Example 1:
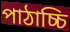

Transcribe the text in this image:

পাঠাচ্চি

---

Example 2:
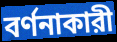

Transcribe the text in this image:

বর্ণনাকারী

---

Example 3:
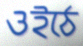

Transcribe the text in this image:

ওইঠে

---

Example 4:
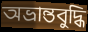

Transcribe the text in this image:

অভ্রান্তবুদ্ধি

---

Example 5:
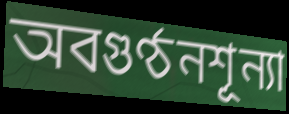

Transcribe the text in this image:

অবগুণ্ঠনশূন্যা